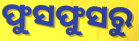
ଫୁସଫୁସରୁ